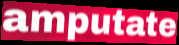
amputate